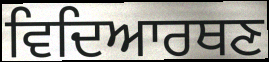
ਵਿਦਿਆਰਥਣ